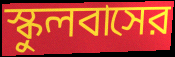
স্কুলবাসের